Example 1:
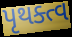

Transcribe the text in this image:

પૃથક્ત્વ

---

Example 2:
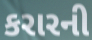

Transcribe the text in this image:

કરારની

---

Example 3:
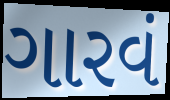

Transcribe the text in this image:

ગારવં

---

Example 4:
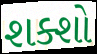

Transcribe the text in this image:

શક્શો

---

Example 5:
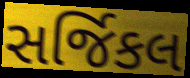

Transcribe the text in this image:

સર્જિકલ